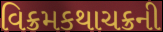
વિક્રમકથાચક્રની